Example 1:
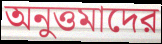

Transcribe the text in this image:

অনুত্তমাদের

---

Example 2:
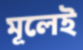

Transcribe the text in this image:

মূলেই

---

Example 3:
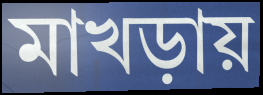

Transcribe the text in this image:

মাখড়ায়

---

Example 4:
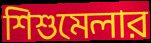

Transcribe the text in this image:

শিশুমেলার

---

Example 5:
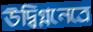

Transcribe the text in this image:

উদ্বিগ্ননেত্রে